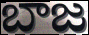
బాజ